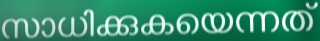
സാധിക്കുകയെന്നത്